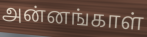
அன்னங்காள்